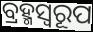
ବ୍ରହ୍ମସ୍ୱରୂପ